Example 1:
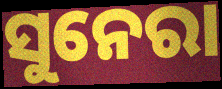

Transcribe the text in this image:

ସୁନେରା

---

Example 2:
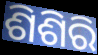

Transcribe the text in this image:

ଶିଶିରି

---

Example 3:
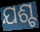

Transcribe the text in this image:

ଯଶ୍ଚ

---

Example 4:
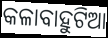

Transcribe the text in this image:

କଳାବାହୁଟିଆ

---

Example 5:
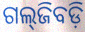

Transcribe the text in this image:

ଗଲ୍‌ଜିବଡ଼ି